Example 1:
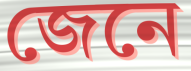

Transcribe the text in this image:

জেনে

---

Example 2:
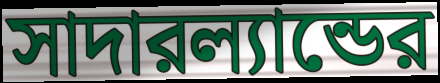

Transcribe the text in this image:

সাদারল্যান্ডের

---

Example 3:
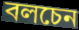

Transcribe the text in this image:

বলচেন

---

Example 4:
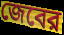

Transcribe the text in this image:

জেবের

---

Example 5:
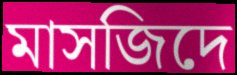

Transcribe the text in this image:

মাসজিদে